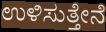
ಉಳಿಸುತ್ತೇನೆ